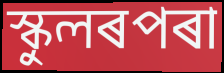
স্কুলৰপৰা